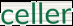
celler